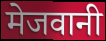
मेजवानी